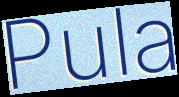
Pula